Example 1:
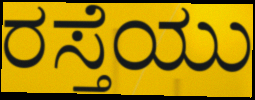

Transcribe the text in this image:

ರಸ್ತೆಯು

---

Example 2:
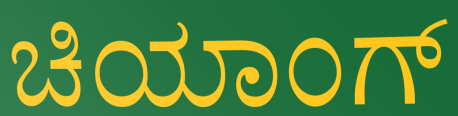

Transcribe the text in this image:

ಚಿಯಾಂಗ್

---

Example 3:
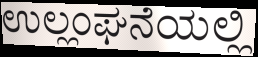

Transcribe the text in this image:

ಉಲ್ಲಂಘನೆಯಲ್ಲಿ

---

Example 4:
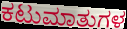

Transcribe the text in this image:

ಕಟುಮಾತುಗಳ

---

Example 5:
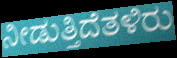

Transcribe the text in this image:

ನೀಡುತ್ತಿದೆತಳಿರು